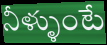
నీళ్ళుంటే